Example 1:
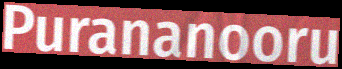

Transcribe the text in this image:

Purananooru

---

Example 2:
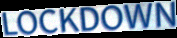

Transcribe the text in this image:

LOCKDOWN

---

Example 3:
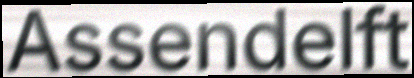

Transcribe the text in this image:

Assendelft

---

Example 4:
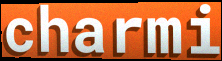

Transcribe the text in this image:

charmi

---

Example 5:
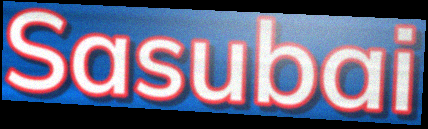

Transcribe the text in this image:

Sasubai